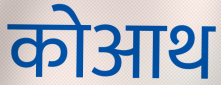
कोआथ